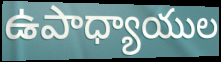
ఉపాధ్యాయుల